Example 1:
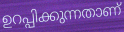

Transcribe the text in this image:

ഉറപ്പിക്കുന്നതാണ്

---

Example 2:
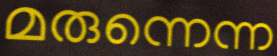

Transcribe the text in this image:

മരുന്നെന്ന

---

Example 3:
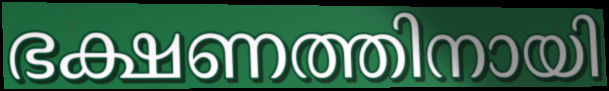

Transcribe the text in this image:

ഭക്ഷണത്തിനായി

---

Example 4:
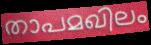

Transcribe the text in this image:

താപമഖിലം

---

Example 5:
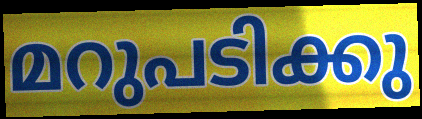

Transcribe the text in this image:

മറുപടിക്കു